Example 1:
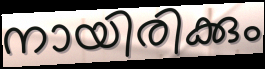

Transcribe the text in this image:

നായിരിക്കും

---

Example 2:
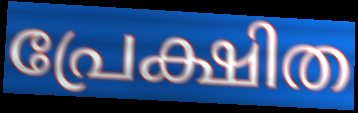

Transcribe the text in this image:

പ്രേക്ഷിത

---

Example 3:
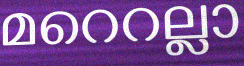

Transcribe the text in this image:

മറെറല്ലാ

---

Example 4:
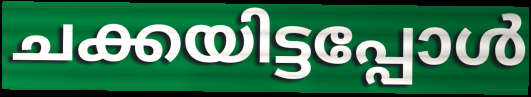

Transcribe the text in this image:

ചക്കയിട്ടപ്പോൾ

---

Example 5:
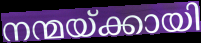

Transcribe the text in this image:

നന്മയ്ക്കായി